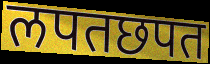
लपतछपत